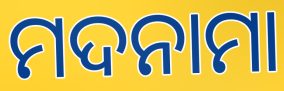
ମଦନାମା